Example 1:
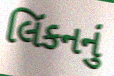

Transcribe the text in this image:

લિંકનનું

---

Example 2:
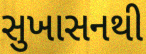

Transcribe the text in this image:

સુખાસનથી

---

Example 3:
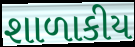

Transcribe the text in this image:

શાળાકીય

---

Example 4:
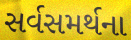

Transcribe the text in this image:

સર્વસમર્થના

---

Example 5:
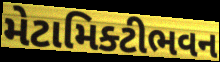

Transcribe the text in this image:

મેટામિક્ટીભવન